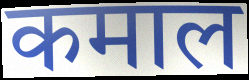
कमाल